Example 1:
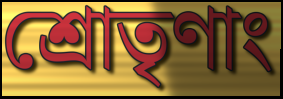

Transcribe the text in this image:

শ্রোতৃণাং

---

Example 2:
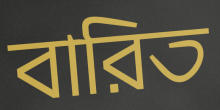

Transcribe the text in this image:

বারিত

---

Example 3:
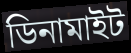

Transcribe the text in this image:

ডিনামাইট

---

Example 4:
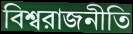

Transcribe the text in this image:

বিশ্বরাজনীতি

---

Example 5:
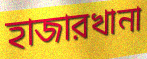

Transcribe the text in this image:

হাজারখানা